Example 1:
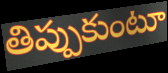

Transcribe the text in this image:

తిప్పుకుంటూ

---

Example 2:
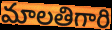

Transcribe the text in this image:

మాలతిగారి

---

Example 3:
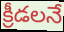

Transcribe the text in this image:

క్రీడలనే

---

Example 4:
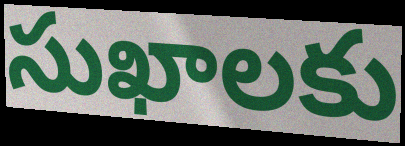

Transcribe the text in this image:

సుఖాలకు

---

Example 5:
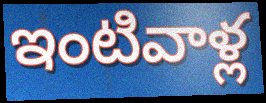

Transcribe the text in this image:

ఇంటివాళ్ల